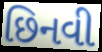
છિનવી